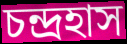
চন্দ্রহাস